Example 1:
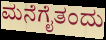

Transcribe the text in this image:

ಮನೆಗೈತಂದು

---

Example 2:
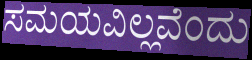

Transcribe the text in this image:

ಸಮಯವಿಲ್ಲವೆಂದು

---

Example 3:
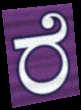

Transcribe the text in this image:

ರೆ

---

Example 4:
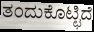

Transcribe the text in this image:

ತಂದುಕೊಟ್ಟಿದೆ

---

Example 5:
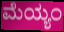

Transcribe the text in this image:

ಮೆಯ್ಯಂ